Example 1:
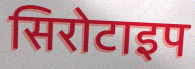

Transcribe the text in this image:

सिरोटाइप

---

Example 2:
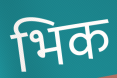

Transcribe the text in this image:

भिक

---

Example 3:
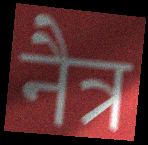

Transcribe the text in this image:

नैत्र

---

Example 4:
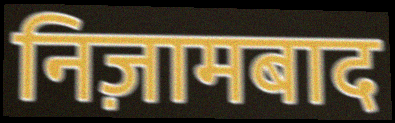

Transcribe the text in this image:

निज़ामबाद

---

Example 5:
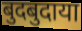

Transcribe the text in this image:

बुदबुदाया